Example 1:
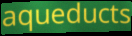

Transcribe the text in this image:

aqueducts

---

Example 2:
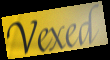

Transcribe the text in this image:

Vexed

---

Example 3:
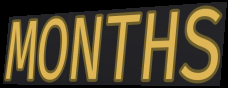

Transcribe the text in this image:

MONTHS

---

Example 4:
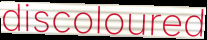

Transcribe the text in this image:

discoloured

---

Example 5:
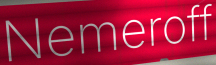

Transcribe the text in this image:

Nemeroff